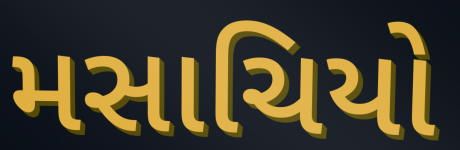
મસાચિયો